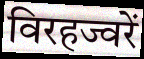
विरहज्वरें